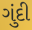
ગુંદી